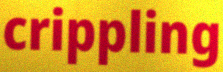
crippling